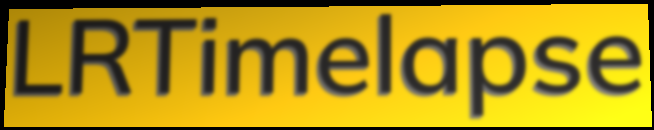
LRTimelapse